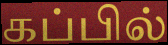
கப்பில்